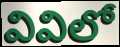
వివిలో